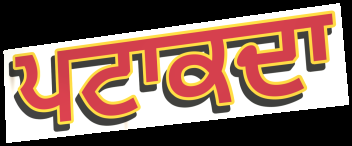
ਪਟਾਕਦਾ